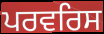
ਪਰਵਰਿਸ